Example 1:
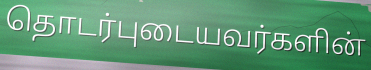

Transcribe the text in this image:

தொடர்புடையவர்களின்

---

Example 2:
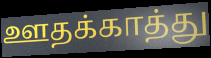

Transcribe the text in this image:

ஊதக்காத்து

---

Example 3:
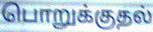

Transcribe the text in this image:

பொறுக்குதல்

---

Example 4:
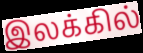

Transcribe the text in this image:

இலக்கில்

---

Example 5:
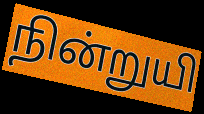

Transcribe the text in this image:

நின்றுயி